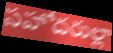
సహోదరుల్లా